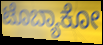
ಟೊಬ್ಯಾಕೋ